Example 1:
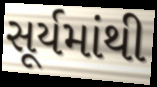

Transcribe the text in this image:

સૂર્યમાંથી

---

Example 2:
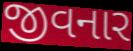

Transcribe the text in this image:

જીવનાર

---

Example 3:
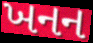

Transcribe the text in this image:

ખનન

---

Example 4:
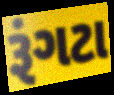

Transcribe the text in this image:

રૂંગટા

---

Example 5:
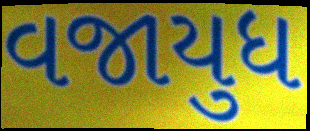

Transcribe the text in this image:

વજાયુધ